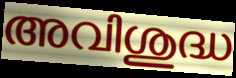
അവിശുദ്ധ